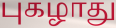
புகழாது